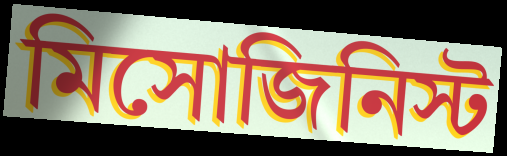
মিসোজিনিস্ট